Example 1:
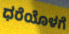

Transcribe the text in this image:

ಧರೆಯೊಳಗೆ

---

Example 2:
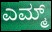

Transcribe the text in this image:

ಎಮ್ಮ್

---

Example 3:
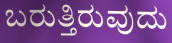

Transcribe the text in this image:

ಬರುತ್ತಿರುವುದು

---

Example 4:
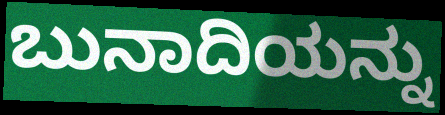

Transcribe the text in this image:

ಬುನಾದಿಯನ್ನು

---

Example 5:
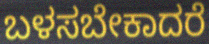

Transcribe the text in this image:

ಬಳಸಬೇಕಾದರೆ